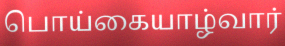
பொய்கையாழ்வார்